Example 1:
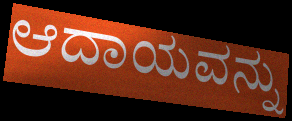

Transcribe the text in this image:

ಆದಾಯವನ್ನು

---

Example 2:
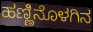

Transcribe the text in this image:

ಹಣ್ಣಿನೊಳಗಿನ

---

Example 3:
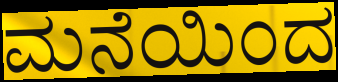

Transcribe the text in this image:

ಮನೆಯಿಂದ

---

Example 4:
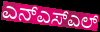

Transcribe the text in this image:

ಎನ್ಎಸ್ಎಲ್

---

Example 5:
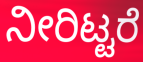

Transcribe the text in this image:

ನೀರಿಟ್ಟರೆ